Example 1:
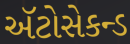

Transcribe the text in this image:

ઍટોસેકન્ડ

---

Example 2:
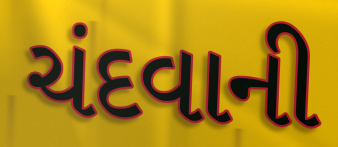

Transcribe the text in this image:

ચંદવાની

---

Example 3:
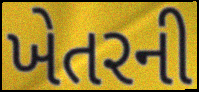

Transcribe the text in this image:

ખેતરની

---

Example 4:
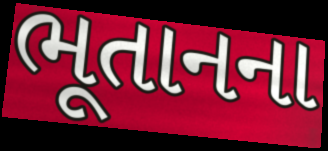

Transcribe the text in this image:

ભૂતાનના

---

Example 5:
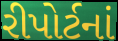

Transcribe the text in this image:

રીપોર્ટનાં